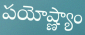
పయోష్ణ్యాం